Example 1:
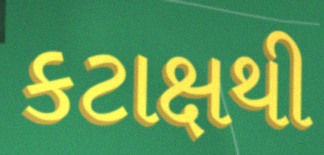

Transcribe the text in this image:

કટાક્ષથી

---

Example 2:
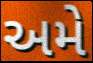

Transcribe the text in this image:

અમે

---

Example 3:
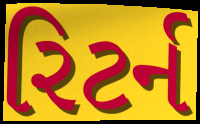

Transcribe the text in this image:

રિટર્ન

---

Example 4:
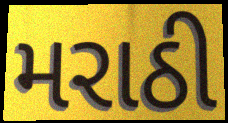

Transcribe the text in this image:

મરાઠી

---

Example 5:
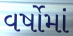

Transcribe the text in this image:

વર્ષોમાં